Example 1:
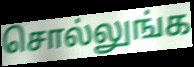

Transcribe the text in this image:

சொல்லுங்க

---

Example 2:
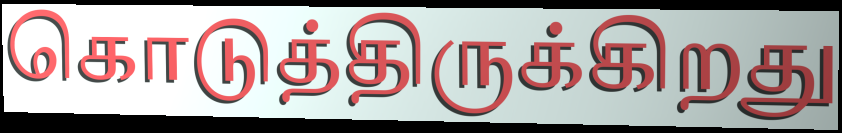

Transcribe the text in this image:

கொடுத்திருக்கிறது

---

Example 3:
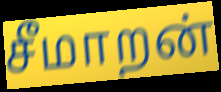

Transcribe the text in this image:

சீமாறன்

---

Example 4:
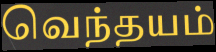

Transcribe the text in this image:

வெந்தயம்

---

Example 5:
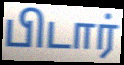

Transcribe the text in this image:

பிடார்